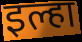
इल्हा